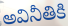
అవినీతికి